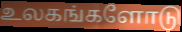
உலகங்களோடு